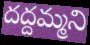
దద్దమ్మని